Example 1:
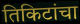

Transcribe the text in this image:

तिकिटांचा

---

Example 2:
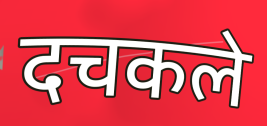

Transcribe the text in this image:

दचकले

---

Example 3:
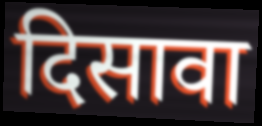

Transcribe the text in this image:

दिसावा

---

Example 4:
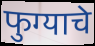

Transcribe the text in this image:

फुग्याचे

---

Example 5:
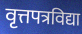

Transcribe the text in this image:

वृत्तपत्रविद्या